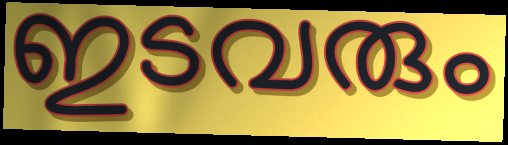
ഇടവരും